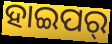
ହାଇପର୍